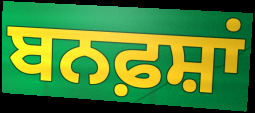
ਬਨਫ਼ਸ਼ਾਂ